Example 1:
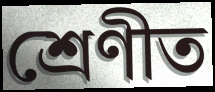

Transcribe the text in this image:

শ্ৰেণীত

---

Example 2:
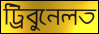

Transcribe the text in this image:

ট্ৰিবুনেলত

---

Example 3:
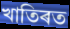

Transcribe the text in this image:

খাতিৰত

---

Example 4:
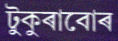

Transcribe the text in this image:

টুকুৰাবোৰ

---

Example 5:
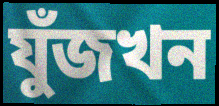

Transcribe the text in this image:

যুঁজখন